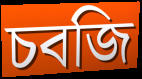
চবজি